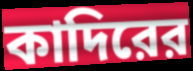
কাদিরের